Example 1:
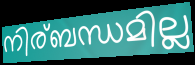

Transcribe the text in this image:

നിര്ബന്ധമില്ല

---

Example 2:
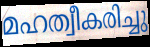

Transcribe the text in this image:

മഹത്വീകരിച്ചു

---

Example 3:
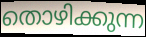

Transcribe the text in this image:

തൊഴിക്കുന്ന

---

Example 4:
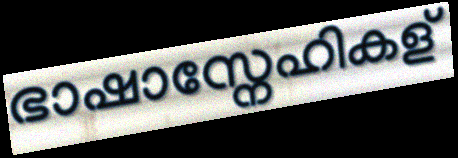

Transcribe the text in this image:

ഭാഷാസ്നേഹികള്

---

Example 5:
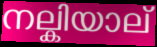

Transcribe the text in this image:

നല്കിയാല്